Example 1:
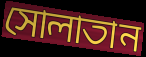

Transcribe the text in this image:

সোলাতান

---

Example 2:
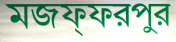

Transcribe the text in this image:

মজফ্ফরপুর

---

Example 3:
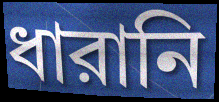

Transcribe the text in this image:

ধারানি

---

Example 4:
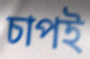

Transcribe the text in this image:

চাপই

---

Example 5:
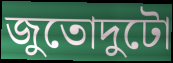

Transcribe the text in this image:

জুতোদুটো